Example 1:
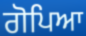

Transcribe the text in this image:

ਗੋਪਿਆ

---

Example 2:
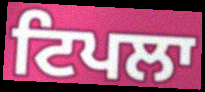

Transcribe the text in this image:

ਟਿਪਲਾ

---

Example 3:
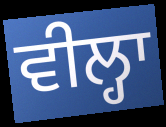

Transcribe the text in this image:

ਵੀਲ੍ਹਾ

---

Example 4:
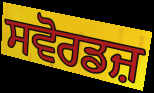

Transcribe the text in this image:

ਸਵੋਰਡਜ਼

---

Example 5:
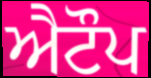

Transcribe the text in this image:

ਐਟੌਪ